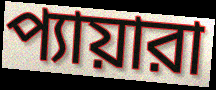
প্যায়ারা